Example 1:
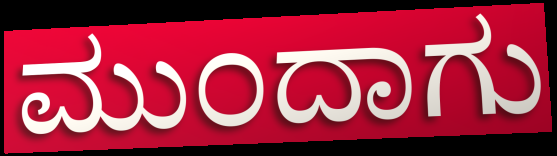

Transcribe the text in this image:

ಮುಂದಾಗು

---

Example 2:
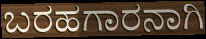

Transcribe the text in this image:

ಬರಹಗಾರನಾಗಿ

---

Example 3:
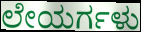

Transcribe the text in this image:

ಲೇಯರ್ಗಳು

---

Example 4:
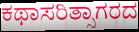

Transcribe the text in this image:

ಕಥಾಸರಿತ್ಸಾಗರದ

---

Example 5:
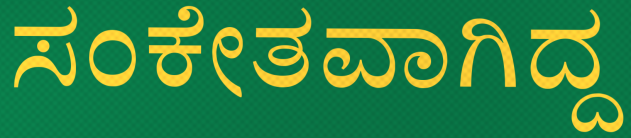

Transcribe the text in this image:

ಸಂಕೇತವಾಗಿದ್ದ